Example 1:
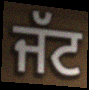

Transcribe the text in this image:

ਜੱਟ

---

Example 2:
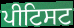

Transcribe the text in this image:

ਪੀਟਿਸਟ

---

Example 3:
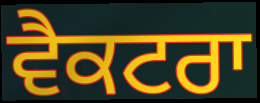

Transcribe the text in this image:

ਵੈਕਟਰਾ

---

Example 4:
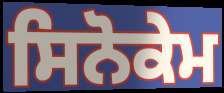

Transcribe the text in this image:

ਸਿਨੋਕੇਮ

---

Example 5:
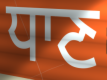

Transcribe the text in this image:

ਧਾਣ